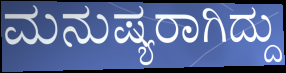
ಮನುಷ್ಯರಾಗಿದ್ದು